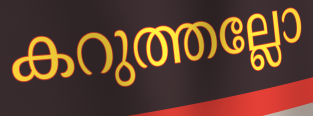
കറുത്തല്ലോ